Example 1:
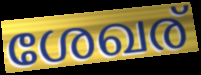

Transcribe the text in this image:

ശേഖര്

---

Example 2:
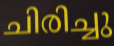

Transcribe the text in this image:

ചിരിച്ചു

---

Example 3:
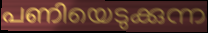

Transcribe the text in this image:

പണിയെടുക്കുന്ന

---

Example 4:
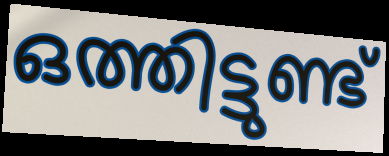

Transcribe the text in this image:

ഒത്തിട്ടുണ്ട്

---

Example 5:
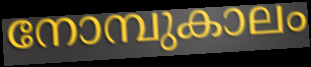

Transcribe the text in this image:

നോമ്പുകാലം